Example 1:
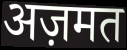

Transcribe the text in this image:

अज़मत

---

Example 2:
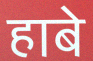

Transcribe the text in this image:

हाबे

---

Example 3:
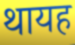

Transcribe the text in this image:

थायह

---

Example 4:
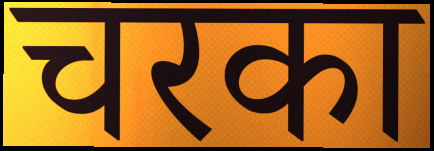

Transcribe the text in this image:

चरका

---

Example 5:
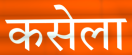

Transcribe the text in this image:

कसेला